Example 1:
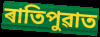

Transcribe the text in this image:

ৰাতিপুৱাত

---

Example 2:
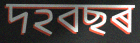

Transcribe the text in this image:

দহবছৰ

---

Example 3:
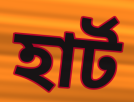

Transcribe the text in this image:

হাৰ্ট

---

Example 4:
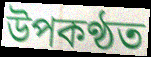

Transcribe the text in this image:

উপকণ্ঠত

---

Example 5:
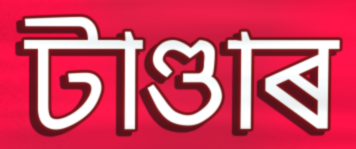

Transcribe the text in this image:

টাণ্ডাৰ